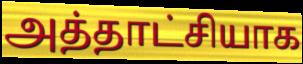
அத்தாட்சியாக